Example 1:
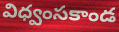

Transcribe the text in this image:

విధ్వంసకాండ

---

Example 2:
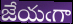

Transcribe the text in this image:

జేయఁగా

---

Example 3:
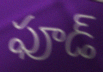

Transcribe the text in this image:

ఫూడ్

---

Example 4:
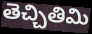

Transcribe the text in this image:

తెచ్చితిమి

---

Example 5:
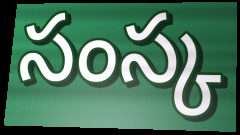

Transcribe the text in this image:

సంస్క